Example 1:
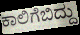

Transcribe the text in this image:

ಕಾಲಿಗೆಬಿದ್ದು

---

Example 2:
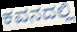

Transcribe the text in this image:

ಕವನದಲ್ಲಿ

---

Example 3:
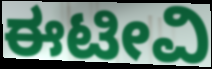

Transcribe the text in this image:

ಈಟೀವಿ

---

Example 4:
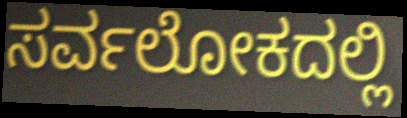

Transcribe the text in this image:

ಸರ್ವಲೋಕದಲ್ಲಿ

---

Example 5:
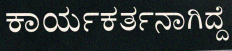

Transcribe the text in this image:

ಕಾರ್ಯಕರ್ತನಾಗಿದ್ದೆ